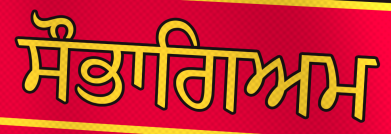
ਸੌਭਾਗਿਅਮ